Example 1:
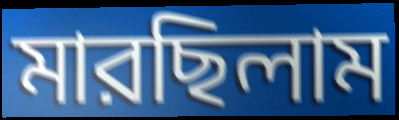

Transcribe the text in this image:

মারছিলাম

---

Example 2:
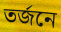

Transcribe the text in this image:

তর্জনে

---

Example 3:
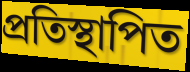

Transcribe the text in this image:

প্রতিস্থাপিত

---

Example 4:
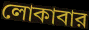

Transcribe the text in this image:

লোকাবার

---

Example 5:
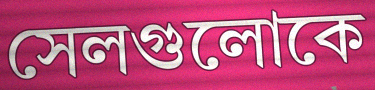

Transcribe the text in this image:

সেলগুলোকে